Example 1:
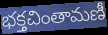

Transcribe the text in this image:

భక్తచింతామణీ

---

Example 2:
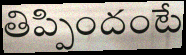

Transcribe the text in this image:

తిప్పిందంటే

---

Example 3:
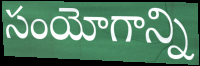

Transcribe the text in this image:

సంయోగాన్ని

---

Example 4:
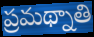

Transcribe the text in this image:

ప్రమథ్నాతి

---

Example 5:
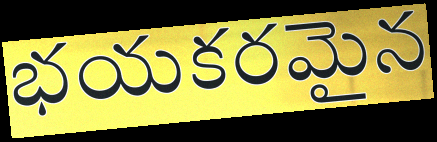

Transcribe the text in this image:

భయకరమైన